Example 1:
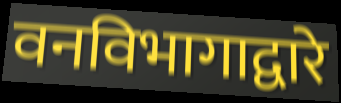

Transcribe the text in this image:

वनविभागाद्वारे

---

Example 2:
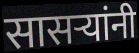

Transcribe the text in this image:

सासर्‍यांनी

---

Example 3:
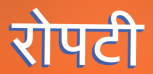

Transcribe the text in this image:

रोपटी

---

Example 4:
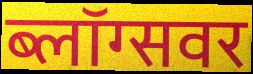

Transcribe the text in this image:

ब्लॉग्सवर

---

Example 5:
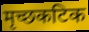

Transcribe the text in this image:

मृच्छकटिक